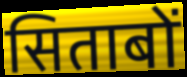
सिताबों